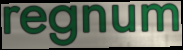
regnum